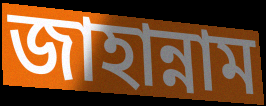
জাহান্নাম